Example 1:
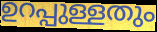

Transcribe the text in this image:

ഉറപ്പുള്ളതും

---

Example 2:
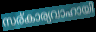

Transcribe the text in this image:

സര്കാര്യവാഹായി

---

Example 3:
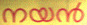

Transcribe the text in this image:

നയൻ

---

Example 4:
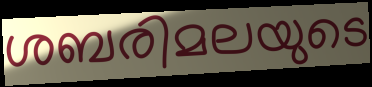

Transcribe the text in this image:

ശബരിമലയുടെ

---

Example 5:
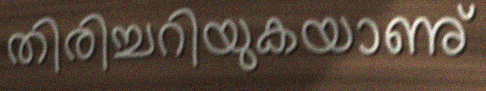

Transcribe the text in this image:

തിരിച്ചറിയുകയാണു്